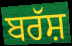
ਬਰੱਸ਼